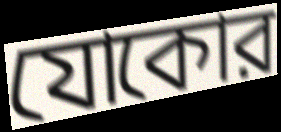
যোকোর